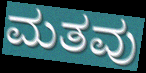
ಮತವು